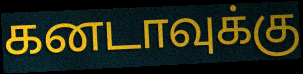
கனடாவுக்கு